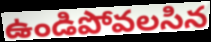
ఉండిపోవలసిన